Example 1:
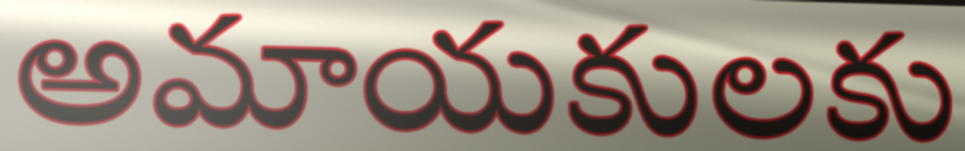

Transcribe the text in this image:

అమాయకులకు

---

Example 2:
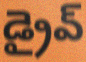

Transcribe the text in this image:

డ్రైవ్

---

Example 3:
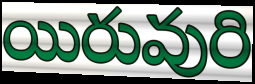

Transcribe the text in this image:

యిరువురి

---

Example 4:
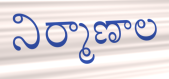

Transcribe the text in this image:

నిర్మాణాల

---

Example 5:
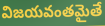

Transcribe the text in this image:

విజయవంతమైతే